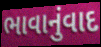
ભાવાનુંવાદ